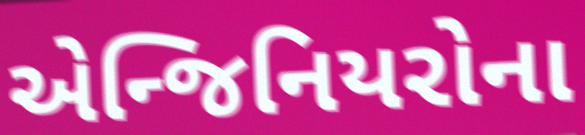
એન્જિનિયરોના